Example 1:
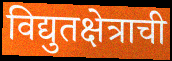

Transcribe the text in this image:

विद्युतक्षेत्राची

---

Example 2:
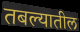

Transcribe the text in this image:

तबल्यातील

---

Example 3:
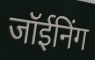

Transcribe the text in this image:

जॉईनिंग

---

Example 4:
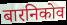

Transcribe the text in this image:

बारनिकोव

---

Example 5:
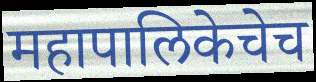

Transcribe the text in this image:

महापालिकेचेच